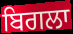
ਬਿਗਲਾ